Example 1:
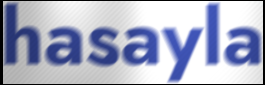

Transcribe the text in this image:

hasayla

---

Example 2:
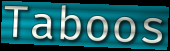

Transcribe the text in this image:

Taboos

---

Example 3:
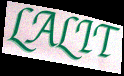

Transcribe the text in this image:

LALIT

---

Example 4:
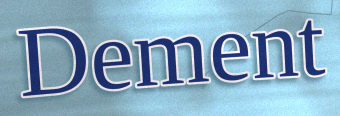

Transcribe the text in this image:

Dement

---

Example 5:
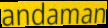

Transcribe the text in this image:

andaman